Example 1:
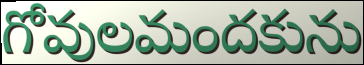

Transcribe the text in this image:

గోవులమందకును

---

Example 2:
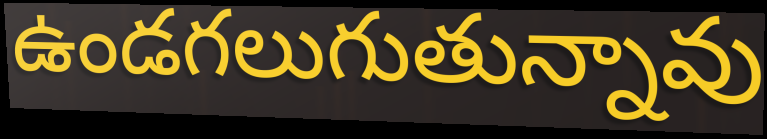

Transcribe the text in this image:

ఉండగలుగుతున్నావు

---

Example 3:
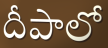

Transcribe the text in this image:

దీపాలో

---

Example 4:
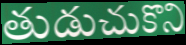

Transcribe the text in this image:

తుడుచుకొని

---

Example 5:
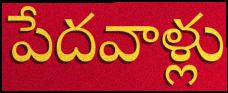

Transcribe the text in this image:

పేదవాళ్లు